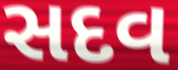
સદવ